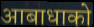
आबाधाको